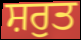
ਸ਼ਰੁਤ